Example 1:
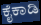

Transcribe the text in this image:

ಕೈಕಾಡಿ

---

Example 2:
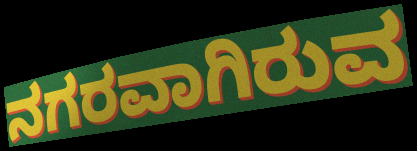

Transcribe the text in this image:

ನಗರವಾಗಿರುವ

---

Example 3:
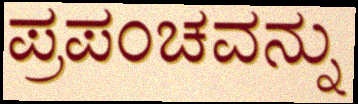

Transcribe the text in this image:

ಪ್ರಪಂಚವನ್ನು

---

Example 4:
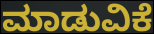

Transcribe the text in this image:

ಮಾಡುವಿಕೆ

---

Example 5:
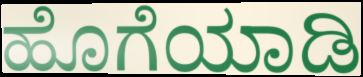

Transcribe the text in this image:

ಹೊಗೆಯಾಡಿ